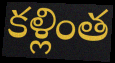
కళ్లింత